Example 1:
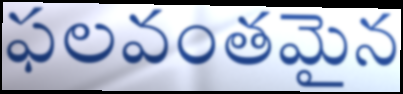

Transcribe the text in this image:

ఫలవంతమైన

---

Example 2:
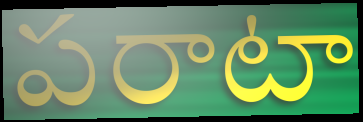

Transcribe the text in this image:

పరాటా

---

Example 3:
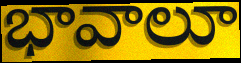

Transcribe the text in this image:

భావాలూ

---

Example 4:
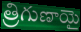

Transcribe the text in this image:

త్రిగుణాయై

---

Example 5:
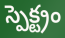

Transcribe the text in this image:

స్పెక్ట్రం